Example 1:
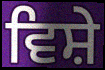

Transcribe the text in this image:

ਵਿਸ਼ੇ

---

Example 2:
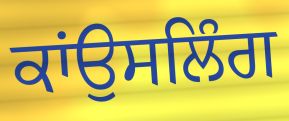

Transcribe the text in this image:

ਕਾਂਉਸਲਿੰਗ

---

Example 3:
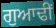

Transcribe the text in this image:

ਗੁਆਢੀਂ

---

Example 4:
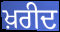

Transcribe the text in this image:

ਖ਼ਰੀਦ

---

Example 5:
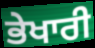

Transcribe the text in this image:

ਭੇਖਾਰੀ